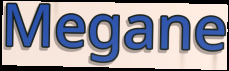
Megane